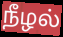
நீழல்